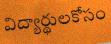
విద్యార్థులకోసం